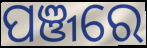
ପଞ୍ଜରେ